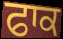
ਫਾਕ